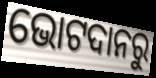
ଭୋଟଦାନରୁ